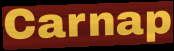
Carnap